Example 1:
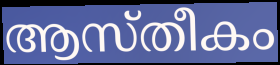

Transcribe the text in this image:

ആസ്തീകം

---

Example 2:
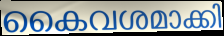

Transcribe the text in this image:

കൈവശമാക്കി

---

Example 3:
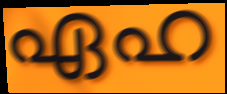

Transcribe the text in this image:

ഏഹ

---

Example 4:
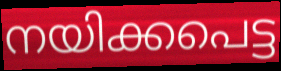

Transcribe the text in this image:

നയിക്കപെട്ട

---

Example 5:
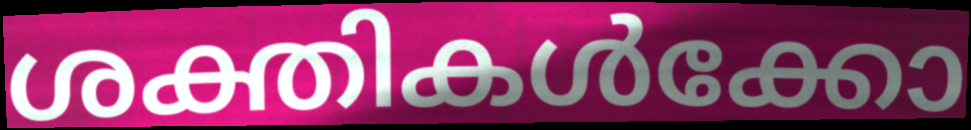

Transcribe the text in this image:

ശക്തികൾക്കോ